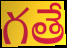
గతే